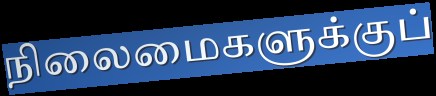
நிலைமைகளுக்குப்